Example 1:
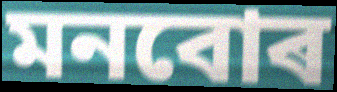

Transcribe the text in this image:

মনবোৰ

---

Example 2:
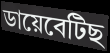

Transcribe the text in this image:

ডায়েবেটিছ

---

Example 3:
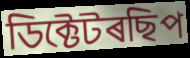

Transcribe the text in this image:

ডিক্টেটৰছিপ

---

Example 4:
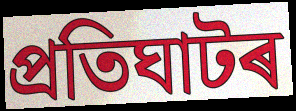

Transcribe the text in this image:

প্ৰতিঘাটৰ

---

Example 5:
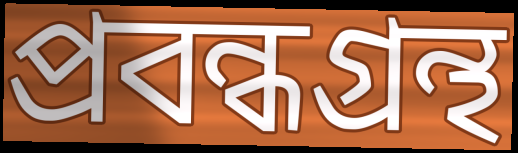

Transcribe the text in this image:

প্ৰবন্ধগ্ৰন্থ